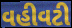
વહીવટી